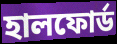
হালফোর্ড